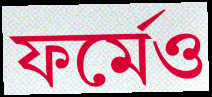
ফর্মেও